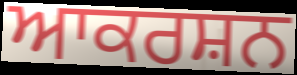
ਆਕਰਸ਼ਨ